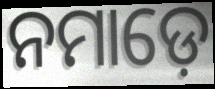
ନମାଡ଼େ